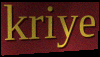
kriye